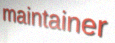
maintainer